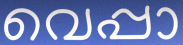
വെപ്പാ